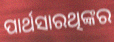
ପାର୍ଥସାରଥିଙ୍କର